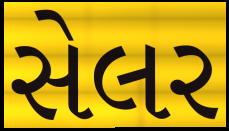
સેલર